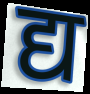
द्य